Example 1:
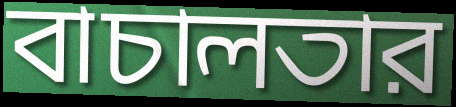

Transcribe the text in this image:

বাচালতার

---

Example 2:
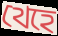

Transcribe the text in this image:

থেহে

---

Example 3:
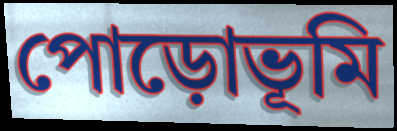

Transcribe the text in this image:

পোড়োভূমি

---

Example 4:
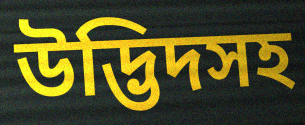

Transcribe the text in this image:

উদ্ভিদসহ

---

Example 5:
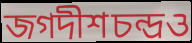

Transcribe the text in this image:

জগদীশচন্দ্রও